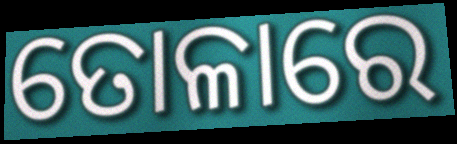
ତୋଳାରେ